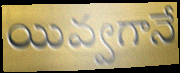
యివ్వగానే